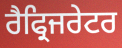
ਰੈਫ੍ਰਿਜਰੇਟਰ